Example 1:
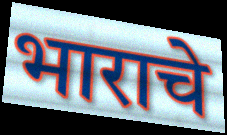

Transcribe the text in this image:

भाराचे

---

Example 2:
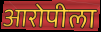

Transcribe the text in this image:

आरोपीला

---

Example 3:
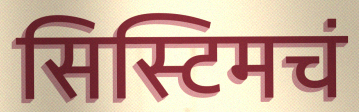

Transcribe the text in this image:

सिस्टिमचं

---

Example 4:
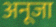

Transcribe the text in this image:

अनूजा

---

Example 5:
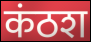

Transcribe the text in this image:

कंठश